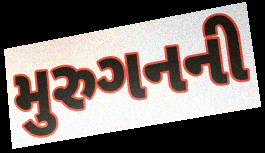
મુરુગનની